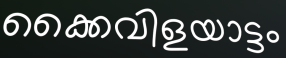
ക്കൈവിളയാട്ടം